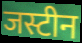
जस्टीन